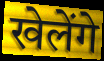
खेलेंगे